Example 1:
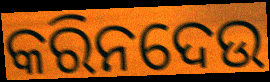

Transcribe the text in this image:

କରିନଦେଉ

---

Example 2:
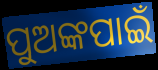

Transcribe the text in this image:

ପୁଅଙ୍କପାଇଁ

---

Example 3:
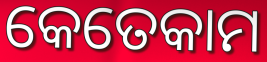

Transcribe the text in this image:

କେତେକାମ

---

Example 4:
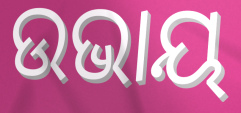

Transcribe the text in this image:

ଉଭାୟ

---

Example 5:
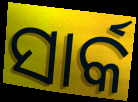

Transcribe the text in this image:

ସାର୍କ